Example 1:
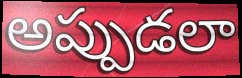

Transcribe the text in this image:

అప్పుడలా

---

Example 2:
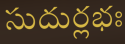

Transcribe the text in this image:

సుదుర్లభః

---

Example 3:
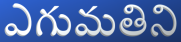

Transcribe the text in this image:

ఎగుమతిని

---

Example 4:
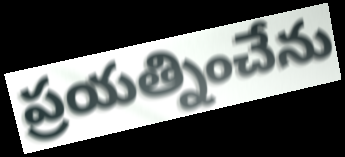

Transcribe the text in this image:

ప్రయత్నించేను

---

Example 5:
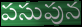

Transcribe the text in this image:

పసుపున